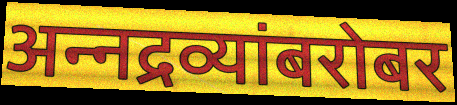
अन्नद्रव्यांबरोबर